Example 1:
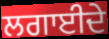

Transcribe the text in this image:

ਲਗਾਈਦੇ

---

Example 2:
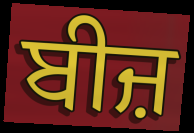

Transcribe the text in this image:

ਬੀਜ਼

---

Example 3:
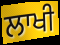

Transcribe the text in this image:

ਲਾਖੀ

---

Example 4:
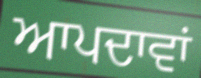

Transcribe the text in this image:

ਆਪਦਾਵਾਂ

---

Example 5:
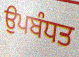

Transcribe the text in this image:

ਉਪਬੰਧਤ